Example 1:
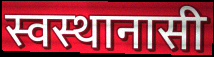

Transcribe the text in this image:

स्वस्थानासी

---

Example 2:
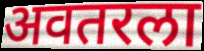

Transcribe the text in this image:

अवतरला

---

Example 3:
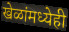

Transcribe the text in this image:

खेळांमध्येही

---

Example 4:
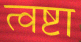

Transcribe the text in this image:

त्वष्टा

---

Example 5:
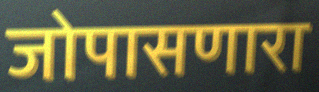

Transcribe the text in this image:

जोपासणारा